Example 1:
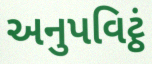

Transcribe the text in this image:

અનુપવિટ્ઠં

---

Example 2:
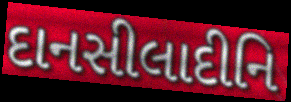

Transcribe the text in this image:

દાનસીલાદીનિ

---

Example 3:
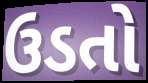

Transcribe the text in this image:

ઉડતો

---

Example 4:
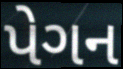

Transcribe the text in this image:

પેગન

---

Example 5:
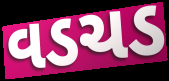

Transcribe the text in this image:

વડચડ